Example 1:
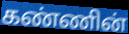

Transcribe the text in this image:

கண்ணின்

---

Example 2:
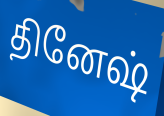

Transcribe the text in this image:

தினேஷ்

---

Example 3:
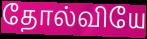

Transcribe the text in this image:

தோல்வியே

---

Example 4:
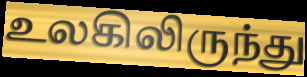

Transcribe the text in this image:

உலகிலிருந்து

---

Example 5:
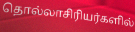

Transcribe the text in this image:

தொல்லாசிரியர்களில்